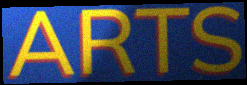
ARTS